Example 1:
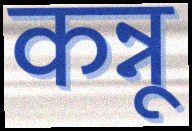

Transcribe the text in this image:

कन्नू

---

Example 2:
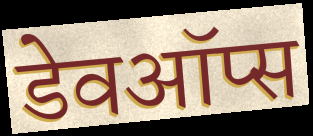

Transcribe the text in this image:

डेवऑप्स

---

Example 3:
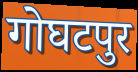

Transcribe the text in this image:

गोघटपुर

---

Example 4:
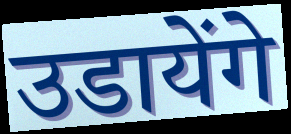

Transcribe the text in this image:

उडायेंगे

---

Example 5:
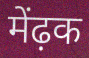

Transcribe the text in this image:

मेंढ़क